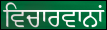
ਵਿਚਾਰਵਾਨਾਂ